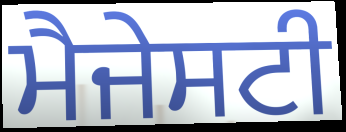
ਮੈਜੇਸਟੀ